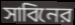
সাবিনের